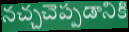
నచ్చచెప్పడానికి